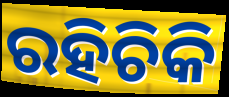
ରହିଚିକି